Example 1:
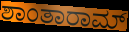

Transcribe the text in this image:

ಶಾಂತಾರಾಮ್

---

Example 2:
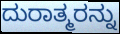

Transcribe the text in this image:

ದುರಾತ್ಮರನ್ನು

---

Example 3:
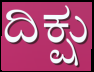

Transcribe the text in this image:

ದಿಕ್ಷು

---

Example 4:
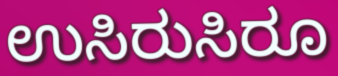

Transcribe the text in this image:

ಉಸಿರುಸಿರೂ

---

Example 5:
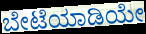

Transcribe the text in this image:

ಬೇಟೆಯಾಡಿಯೇ